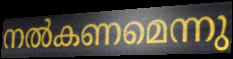
നൽകണമെന്നു